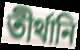
তীর্থানি